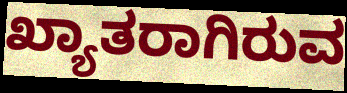
ಖ್ಯಾತರಾಗಿರುವ